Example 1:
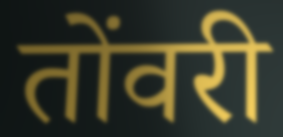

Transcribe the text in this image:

तोंवरी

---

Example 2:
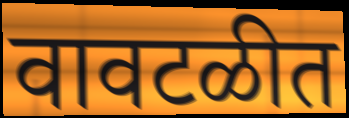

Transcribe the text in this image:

वावटळीत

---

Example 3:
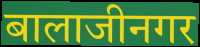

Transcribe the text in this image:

बालाजीनगर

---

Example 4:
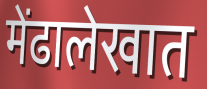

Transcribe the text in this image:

मेंढालेखात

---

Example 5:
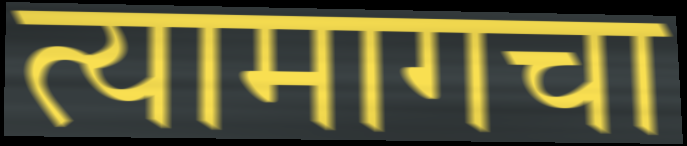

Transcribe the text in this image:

त्यामागचा